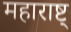
महाराष्ट्